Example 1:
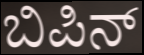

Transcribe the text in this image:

ಬಿಪಿನ್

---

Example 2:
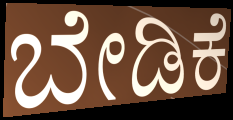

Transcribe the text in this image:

ಬೇಡಿಕೆ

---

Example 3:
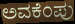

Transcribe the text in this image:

ಅವಕೆಂಪು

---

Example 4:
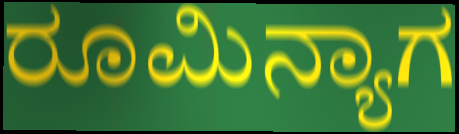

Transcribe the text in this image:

ರೂಮಿನ್ಯಾಗ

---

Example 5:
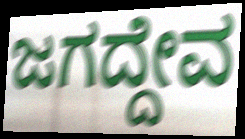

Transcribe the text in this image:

ಜಗದ್ದೇವ